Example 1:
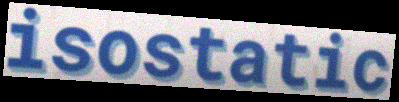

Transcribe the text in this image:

isostatic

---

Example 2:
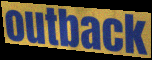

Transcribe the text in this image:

outback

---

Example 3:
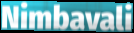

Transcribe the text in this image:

Nimbavali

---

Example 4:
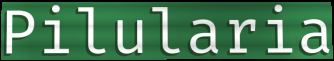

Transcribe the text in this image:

Pilularia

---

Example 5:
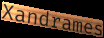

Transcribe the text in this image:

Xandrames